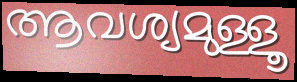
ആവശ്യമുള്ളൂ